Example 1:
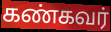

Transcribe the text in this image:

கண்கவர்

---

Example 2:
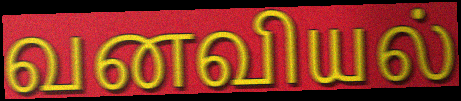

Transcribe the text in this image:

வனவியல்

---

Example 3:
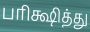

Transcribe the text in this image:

பரிக்ஷித்து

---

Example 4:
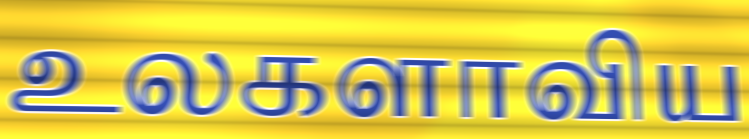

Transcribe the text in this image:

உலகளாவிய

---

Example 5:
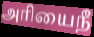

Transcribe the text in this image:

அரியைநீ